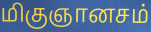
மிகுஞானசம்